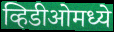
व्हिडीओमध्ये